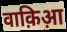
वाक़िआ़